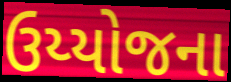
ઉય્યોજના